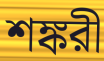
শঙ্করী